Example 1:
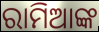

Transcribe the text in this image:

ରାମିଆଙ୍କ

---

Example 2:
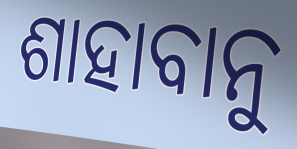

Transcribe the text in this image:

ଶାହାବାନୁ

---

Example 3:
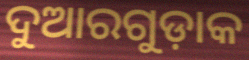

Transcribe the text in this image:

ଦୁଆରଗୁଡ଼ାକ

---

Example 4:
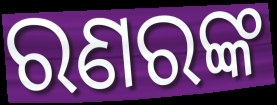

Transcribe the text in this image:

ରଣରଙ୍କ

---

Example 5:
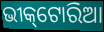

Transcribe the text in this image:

ଭୀକ୍‌ଟୋରିଆ